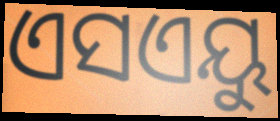
ଏସଏୟୁ